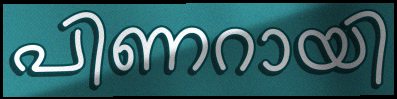
പിണറായി